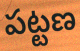
పట్టణ